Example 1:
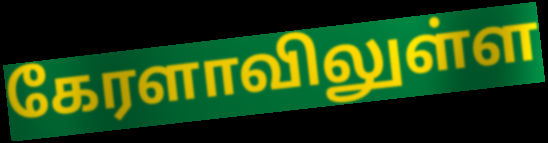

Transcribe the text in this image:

கேரளாவிலுள்ள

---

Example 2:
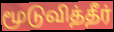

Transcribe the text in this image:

மூடுவித்தீர்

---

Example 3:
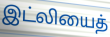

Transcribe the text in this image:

இட்லியைத்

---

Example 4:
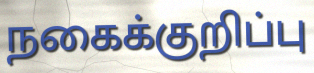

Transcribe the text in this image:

நகைக்குறிப்பு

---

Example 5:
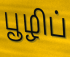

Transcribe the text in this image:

பூழிப்